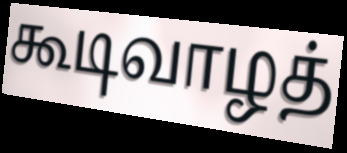
கூடிவாழத்